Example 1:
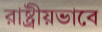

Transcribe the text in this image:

রাষ্ট্রীয়ভাবে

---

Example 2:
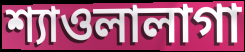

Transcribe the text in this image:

শ্যাওলালাগা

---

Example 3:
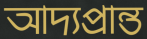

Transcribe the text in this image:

আদ্যপ্রান্ত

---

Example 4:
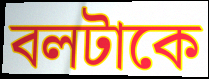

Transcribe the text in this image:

বলটাকে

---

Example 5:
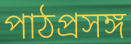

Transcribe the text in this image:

পাঠপ্রসঙ্গ